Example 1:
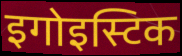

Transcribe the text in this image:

इगोइस्टिक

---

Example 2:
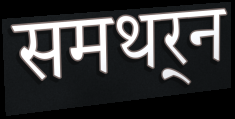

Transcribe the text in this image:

समथर्न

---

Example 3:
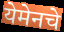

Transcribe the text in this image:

येमेनचे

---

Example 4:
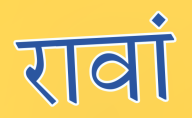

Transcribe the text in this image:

रावां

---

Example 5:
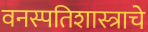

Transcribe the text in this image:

वनस्पतिशास्त्राचे